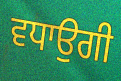
ਵਧਾਉਗੀ